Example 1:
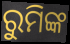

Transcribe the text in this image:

ରୁମିଙ୍କ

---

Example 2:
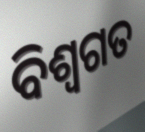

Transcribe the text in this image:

ବିଶ୍ଵଗତ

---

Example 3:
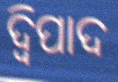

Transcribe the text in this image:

ଦ୍ୱିପାଦ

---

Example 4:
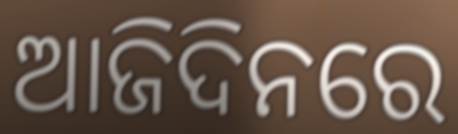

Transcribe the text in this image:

ଆଜିଦିନରେ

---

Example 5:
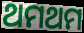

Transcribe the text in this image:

ଥମଥମ